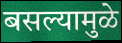
बसल्यामुळे